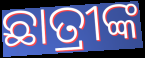
ଛାତ୍ରୀଙ୍କ